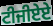
ਟੀਜੀਏਏ